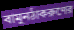
বামুনঠাকরুণের